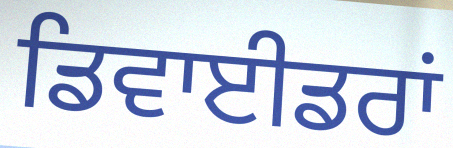
ਡਿਵਾਈਡਰਾਂ